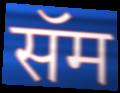
सॅम